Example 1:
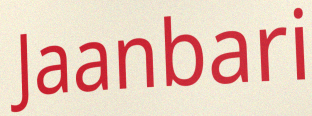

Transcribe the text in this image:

Jaanbari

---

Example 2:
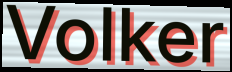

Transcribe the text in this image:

Volker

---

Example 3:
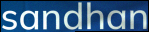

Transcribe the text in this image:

sandhan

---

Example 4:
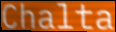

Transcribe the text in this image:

Chalta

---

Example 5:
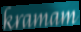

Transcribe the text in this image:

kramam